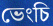
ভেংচি